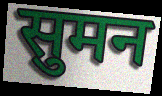
सुमन